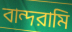
বান্দরামি